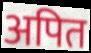
अपित